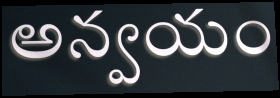
అన్వయం